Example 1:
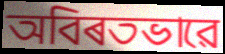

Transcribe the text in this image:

অবিৰতভাৱে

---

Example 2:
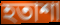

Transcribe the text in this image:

হতাশা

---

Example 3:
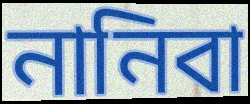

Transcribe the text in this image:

নানিবা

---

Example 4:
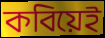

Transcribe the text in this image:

কবিয়েই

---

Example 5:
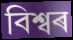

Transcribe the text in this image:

বিশ্বৰ